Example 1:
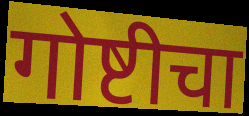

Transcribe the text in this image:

गोष्टीचा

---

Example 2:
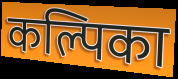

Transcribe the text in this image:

कल्पिका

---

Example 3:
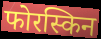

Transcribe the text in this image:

फोरस्किन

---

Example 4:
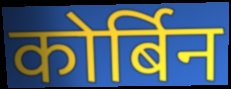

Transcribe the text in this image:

कोर्बिन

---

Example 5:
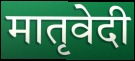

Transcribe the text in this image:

मातृवेदी